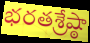
భరతశ్రేష్ఠా